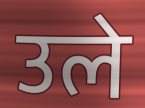
उले